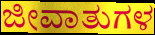
ಜೀವಾತುಗಳ